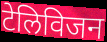
टेलिविजन